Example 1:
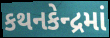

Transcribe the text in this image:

કથનકેન્દ્રમાં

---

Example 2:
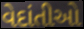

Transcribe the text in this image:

વેદાંતીઓ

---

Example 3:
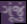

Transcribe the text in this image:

ગૂંજું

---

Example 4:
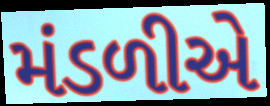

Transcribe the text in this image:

મંડળીએ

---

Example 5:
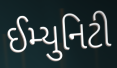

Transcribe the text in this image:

ઈમ્યુનિટી